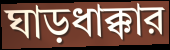
ঘাড়ধাক্কার